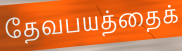
தேவபயத்தைக்